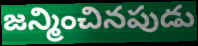
జన్మించినపుడు